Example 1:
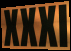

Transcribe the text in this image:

XXXI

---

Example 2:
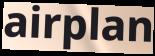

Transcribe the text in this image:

airplan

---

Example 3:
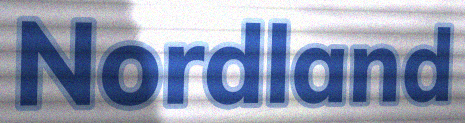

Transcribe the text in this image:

Nordland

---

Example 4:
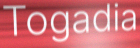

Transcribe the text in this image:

Togadia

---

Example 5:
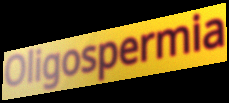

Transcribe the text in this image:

Oligospermia